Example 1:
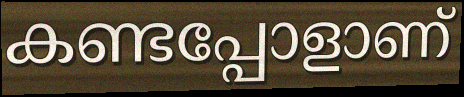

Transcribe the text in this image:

കണ്ടപ്പോളാണ്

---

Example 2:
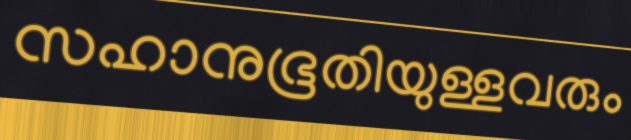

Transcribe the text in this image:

സഹാനുഭൂതിയുള്ളവരും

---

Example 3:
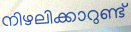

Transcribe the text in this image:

നിഴലിക്കാറുണ്ട്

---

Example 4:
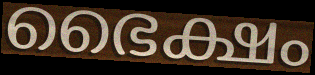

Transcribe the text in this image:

ഭൈക്ഷം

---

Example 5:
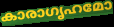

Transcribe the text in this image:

കാരാഗൃഹമോ